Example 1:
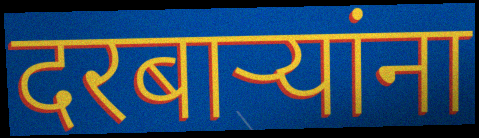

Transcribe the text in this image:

दरबाऱ्यांना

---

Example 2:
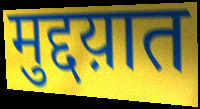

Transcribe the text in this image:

मुद्दय़ात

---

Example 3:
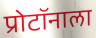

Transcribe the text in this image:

प्रोटॉनाला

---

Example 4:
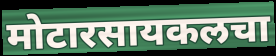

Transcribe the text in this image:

मोटारसायकलचा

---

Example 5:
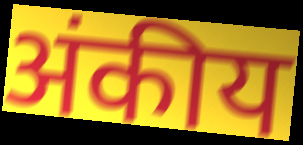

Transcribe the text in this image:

अंकीय